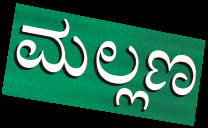
ಮಲ್ಲಣ